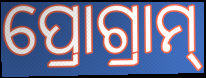
ପ୍ରୋଗ୍ରାମ୍